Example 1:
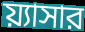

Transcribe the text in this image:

য়্যাসার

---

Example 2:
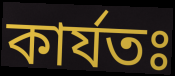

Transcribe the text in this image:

কার্যতঃ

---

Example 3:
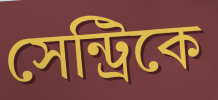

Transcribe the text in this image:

সেন্ট্রিকে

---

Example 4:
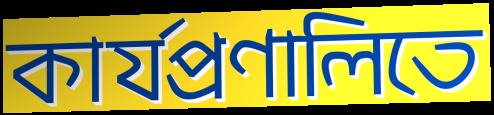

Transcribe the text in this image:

কার্যপ্রণালিতে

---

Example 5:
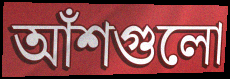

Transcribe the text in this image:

আঁশগুলো